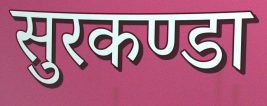
सुरकण्डा